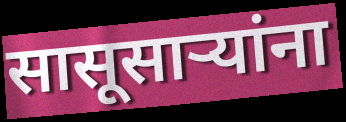
सासूसाऱ्यांना